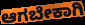
ಆಗಬೇಕಾಗಿ